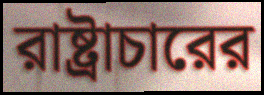
রাষ্ট্রাচারের